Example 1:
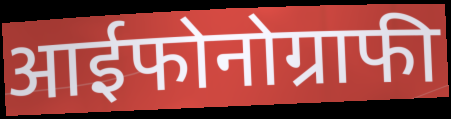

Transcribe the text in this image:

आईफोनोग्राफी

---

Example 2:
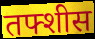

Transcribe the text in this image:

तफ्शीस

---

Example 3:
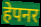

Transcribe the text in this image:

हेपनर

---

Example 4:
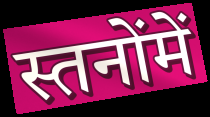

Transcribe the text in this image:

स्तनोंमें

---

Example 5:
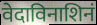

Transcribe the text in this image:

वेदाविनाशिनं